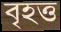
বৃহত্ত